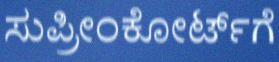
ಸುಪ್ರೀಂಕೋರ್ಟ್‌ಗೆ